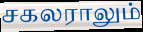
சகலராலும்